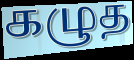
கழுத